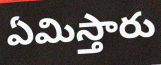
ఏమిస్తారు